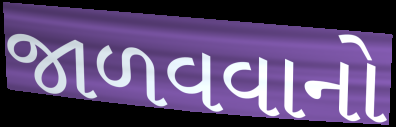
જાળવવાનો